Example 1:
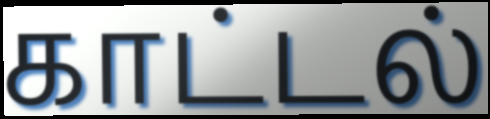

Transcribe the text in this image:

காட்டல்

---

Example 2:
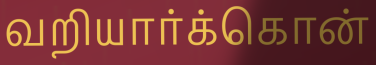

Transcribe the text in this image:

வறியார்க்கொன்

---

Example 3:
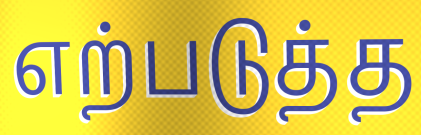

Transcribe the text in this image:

எற்படுத்த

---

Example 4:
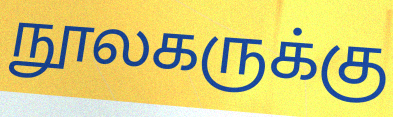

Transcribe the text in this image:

நூலகருக்கு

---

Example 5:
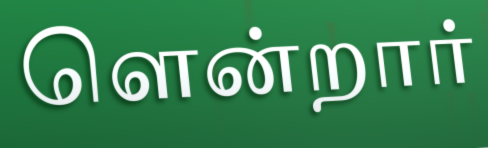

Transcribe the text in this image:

ளென்றார்